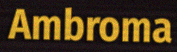
Ambroma